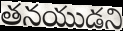
తనయుడని